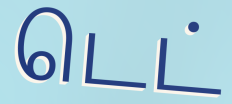
டெட்